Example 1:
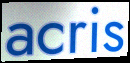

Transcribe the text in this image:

acris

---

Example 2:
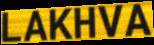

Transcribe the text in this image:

LAKHVA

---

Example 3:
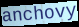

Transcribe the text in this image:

anchovy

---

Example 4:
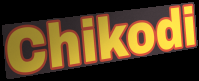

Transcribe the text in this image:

Chikodi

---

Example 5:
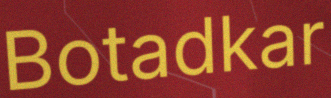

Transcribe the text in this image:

Botadkar